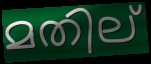
മതില്